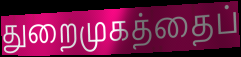
துறைமுகத்தைப்